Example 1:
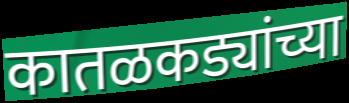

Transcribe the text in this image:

कातळकड्यांच्या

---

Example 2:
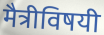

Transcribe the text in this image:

मैत्रीविषयी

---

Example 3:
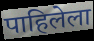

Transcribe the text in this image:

पाहिलेला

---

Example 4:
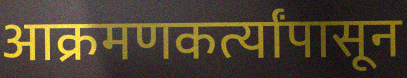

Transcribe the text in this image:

आक्रमणकर्त्यांपासून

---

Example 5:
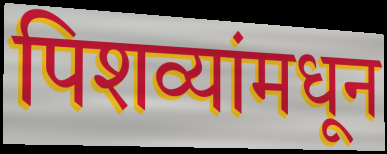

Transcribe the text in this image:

पिशव्यांमधून